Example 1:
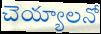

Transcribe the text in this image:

చెయ్యాలనో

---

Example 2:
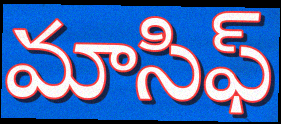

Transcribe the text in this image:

మాసిఫ్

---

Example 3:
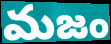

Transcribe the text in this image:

మజం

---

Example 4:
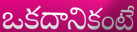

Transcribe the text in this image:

ఒకదానికంటే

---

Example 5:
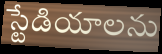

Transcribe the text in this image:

స్టేడియాలను